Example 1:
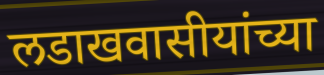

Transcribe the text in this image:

लडाखवासीयांच्या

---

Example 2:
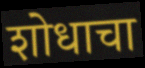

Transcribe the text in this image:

शोधाचा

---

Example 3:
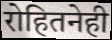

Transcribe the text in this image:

रोहितनेही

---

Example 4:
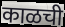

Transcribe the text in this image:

काळची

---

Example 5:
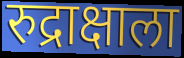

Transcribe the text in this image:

रुद्राक्षाला